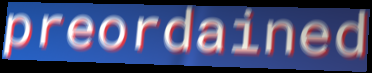
preordained